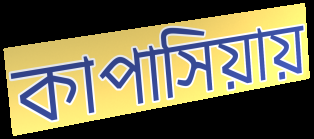
কাপাসিয়ায়